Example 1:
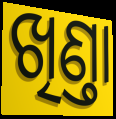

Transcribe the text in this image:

ଖିଣ୍ତା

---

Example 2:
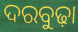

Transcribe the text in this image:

ଦରବୁଢ଼ା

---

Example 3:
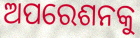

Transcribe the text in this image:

ଅପରେଶନକୁ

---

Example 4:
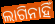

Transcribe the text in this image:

ଲାଗିନାହିଁ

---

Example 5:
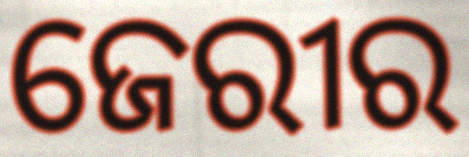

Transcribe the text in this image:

ଜେରୀର